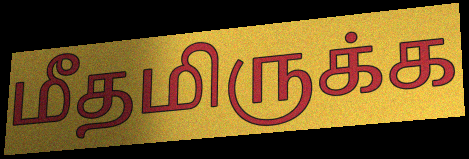
மீதமிருக்க